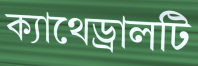
ক্যাথেড্রালটি